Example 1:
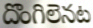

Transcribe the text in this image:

దొంగిలెనట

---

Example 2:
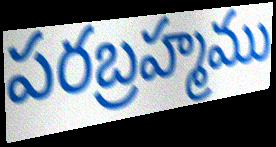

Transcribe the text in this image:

పరబ్రహ్మము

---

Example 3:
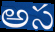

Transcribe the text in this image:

అస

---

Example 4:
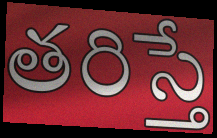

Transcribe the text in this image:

తరిస్తే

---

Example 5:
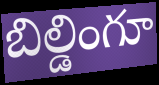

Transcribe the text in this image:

బిల్డింగూ